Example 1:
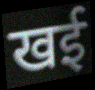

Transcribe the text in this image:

खई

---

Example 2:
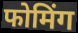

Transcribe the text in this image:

फोमिंग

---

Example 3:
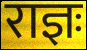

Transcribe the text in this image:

राज्ञः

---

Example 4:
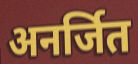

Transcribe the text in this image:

अनर्जित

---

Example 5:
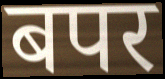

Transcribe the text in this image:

बपर